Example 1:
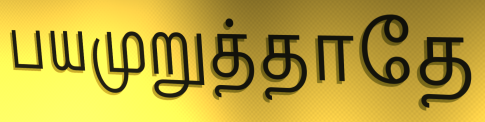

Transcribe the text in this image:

பயமுறுத்தாதே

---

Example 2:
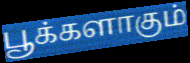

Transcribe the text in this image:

பூக்களாகும்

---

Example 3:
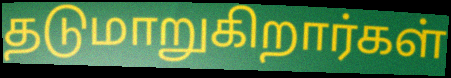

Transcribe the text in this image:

தடுமாறுகிறார்கள்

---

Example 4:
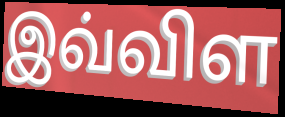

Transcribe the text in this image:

இவ்விள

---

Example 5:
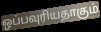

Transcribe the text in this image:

ஒப்பவுரியதாகும்